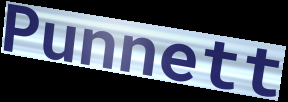
Punnett